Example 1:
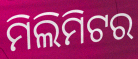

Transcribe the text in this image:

ମିଲିମିଟର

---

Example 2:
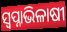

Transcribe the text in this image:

ସ୍ଵପ୍ନାଭିଳାଷୀ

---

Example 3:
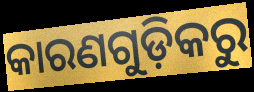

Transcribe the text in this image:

କାରଣଗୁଡ଼ିକରୁ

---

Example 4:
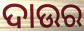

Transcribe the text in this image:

ଦାଉର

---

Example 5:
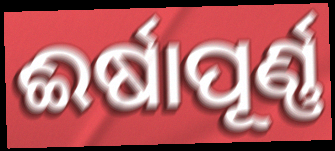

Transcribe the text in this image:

ଈର୍ଷାପୂର୍ଣ୍ଣ